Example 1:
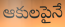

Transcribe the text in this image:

ఆకులపైనే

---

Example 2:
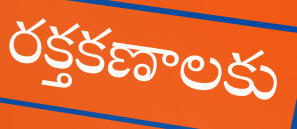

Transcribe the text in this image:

రక్తకణాలకు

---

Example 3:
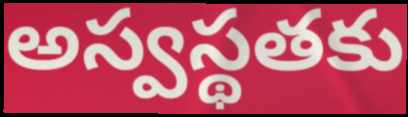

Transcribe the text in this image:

అస్వస్థతకు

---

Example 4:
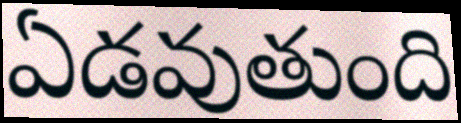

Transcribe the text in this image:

ఏడవుతుంది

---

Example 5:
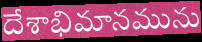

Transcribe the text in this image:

దేశాభిమానమును